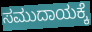
ಸಮುದಾಯಕ್ಕೆ